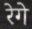
रेगे